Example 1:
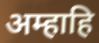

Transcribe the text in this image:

अम्हाहि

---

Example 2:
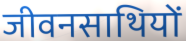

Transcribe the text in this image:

जीवनसाथियों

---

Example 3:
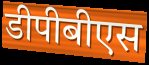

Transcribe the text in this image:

डीपीबीएस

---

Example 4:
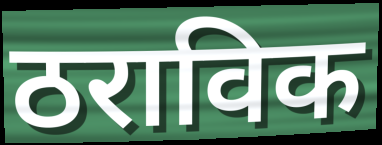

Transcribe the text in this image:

ठराविक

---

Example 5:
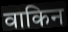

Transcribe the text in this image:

वाकिन